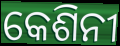
କେଶିନୀ